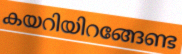
കയറിയിറങ്ങേണ്ട